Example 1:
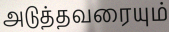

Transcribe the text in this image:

அடுத்தவரையும்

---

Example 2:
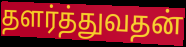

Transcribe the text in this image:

தளர்த்துவதன்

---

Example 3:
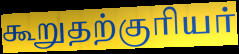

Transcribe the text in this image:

கூறுதற்குரியர்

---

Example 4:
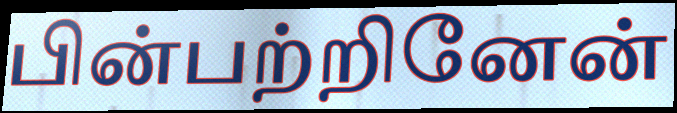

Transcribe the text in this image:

பின்பற்றினேன்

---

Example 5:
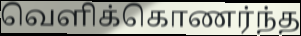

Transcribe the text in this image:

வெளிக்கொணர்ந்த